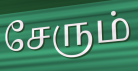
சேரும்